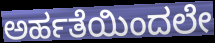
ಅರ್ಹತೆಯಿಂದಲೇ